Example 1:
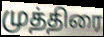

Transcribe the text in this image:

முத்திரை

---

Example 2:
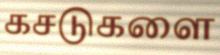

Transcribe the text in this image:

கசடுகளை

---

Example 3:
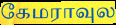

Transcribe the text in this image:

கேமராவுல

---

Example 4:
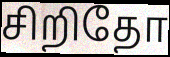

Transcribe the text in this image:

சிறிதோ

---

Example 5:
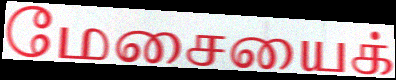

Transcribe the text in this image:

மேசையைக்